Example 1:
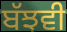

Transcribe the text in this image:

ਬੱਝਵੀ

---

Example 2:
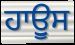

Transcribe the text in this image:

ਹਾਊੁਸ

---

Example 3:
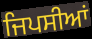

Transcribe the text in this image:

ਜਿਪਸੀਆਂ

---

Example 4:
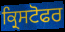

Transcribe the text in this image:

ਕ੍ਰਿਸਟੋਫਰ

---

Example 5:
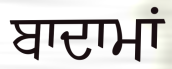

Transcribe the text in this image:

ਬਾਦਾਮਾਂ